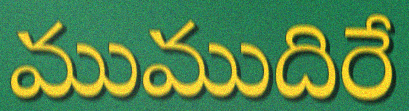
ముముదిరే